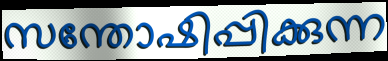
സന്തോഷിപ്പിക്കുന്ന